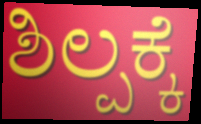
ಶಿಲ್ಪಕ್ಕೆ